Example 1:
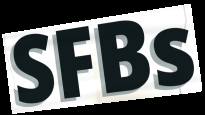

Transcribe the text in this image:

SFBs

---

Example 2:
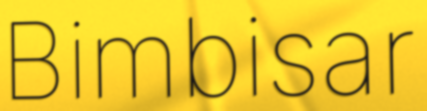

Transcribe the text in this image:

Bimbisar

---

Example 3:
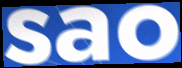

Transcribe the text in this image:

sao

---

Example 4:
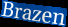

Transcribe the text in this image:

Brazen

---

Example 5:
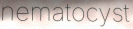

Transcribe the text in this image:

nematocyst